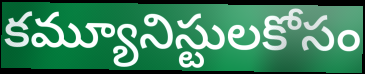
కమ్యూనిస్టులకోసం